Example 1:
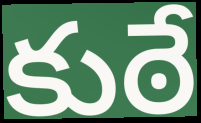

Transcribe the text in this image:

కుఠే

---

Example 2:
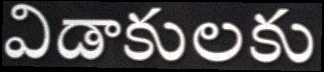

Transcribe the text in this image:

విడాకులకు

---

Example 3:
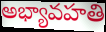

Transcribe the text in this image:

అభ్యావహతి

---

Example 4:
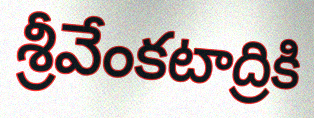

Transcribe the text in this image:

శ్రీవేంకటాద్రికి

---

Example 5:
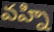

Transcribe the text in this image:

వహ్ని